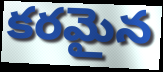
కరమైన